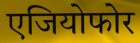
एजियोफोर